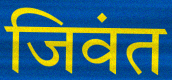
जिवंत